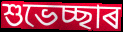
শুভেচ্ছাৰ